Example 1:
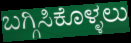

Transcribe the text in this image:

ಬಗ್ಗಿಸಿಕೊಳ್ಳಲು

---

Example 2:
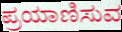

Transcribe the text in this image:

ಪ್ರಯಾಣಿಸುವ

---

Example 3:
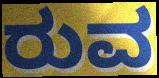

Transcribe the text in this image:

ರುವ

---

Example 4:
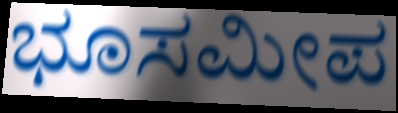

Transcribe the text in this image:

ಭೂಸಮೀಪ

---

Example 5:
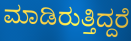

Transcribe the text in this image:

ಮಾಡಿರುತ್ತಿದ್ದರೆ